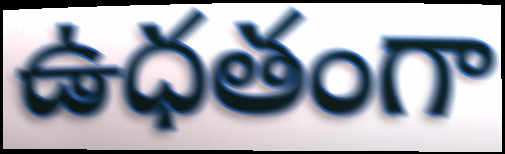
ఉధతంగా